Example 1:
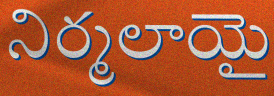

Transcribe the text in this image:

నిర్మలాయై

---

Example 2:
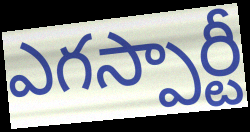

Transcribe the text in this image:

ఎగస్పార్టీ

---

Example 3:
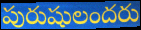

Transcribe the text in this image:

పురుషులందరు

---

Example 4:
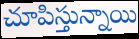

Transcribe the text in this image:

చూపిస్తున్నాయి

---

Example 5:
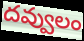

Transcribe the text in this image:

దవ్వులం